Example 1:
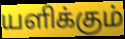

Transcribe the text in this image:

யளிக்கும்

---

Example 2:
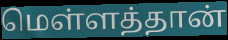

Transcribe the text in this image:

மெள்ளத்தான்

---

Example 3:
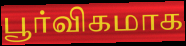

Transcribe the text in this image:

பூர்விகமாக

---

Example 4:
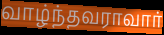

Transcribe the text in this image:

வாழ்ந்தவராவார்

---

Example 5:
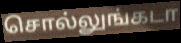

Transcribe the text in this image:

சொல்லுங்கடா